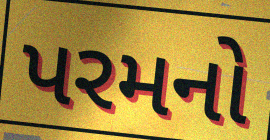
પરમનો